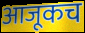
आजूकच